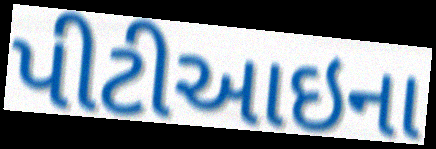
પીટીઆઇના